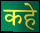
कहे